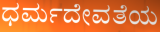
ಧರ್ಮದೇವತೆಯ